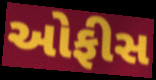
ઓફીસ